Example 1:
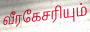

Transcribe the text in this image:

வீரகேசரியும்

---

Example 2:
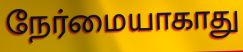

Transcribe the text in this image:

நேர்மையாகாது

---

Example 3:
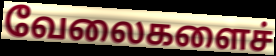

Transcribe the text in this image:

வேலைகளைச்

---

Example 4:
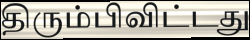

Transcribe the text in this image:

திரும்பிவிட்டது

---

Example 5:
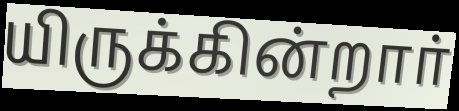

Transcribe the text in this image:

யிருக்கின்றார்